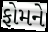
ફોમને